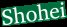
Shohei